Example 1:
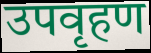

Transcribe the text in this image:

उपवृहण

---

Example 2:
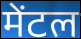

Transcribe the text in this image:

मेंटल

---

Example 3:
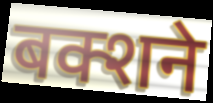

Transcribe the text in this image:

बक्शने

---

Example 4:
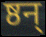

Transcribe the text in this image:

ष्ठन्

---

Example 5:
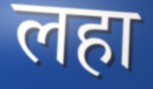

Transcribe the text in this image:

लहा